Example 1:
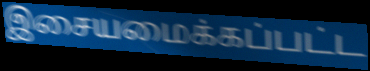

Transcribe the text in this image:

இசையமைக்கப்பட்ட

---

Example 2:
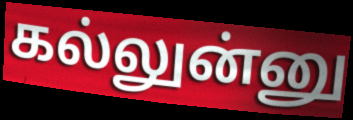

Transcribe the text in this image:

கல்லுன்னு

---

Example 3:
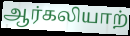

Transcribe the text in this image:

ஆர்கலியாற்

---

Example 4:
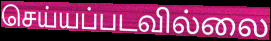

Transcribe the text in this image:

செய்யப்படவில்லை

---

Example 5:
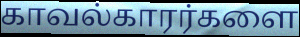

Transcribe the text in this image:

காவல்காரர்களை